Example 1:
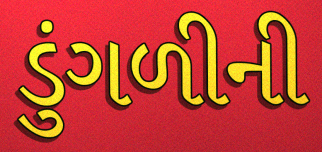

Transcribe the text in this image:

ડુંગળીની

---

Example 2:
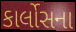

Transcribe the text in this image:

કાર્લોસના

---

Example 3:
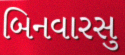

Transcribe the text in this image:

બિનવારસુ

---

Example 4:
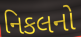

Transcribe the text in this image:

નિકલનો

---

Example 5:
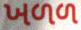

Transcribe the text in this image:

ખળળ